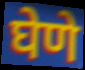
घेणे